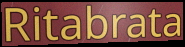
Ritabrata